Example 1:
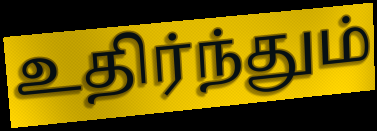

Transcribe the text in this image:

உதிர்ந்தும்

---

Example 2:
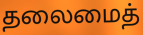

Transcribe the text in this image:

தலைமைத்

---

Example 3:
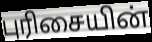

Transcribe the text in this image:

புரிசையின்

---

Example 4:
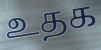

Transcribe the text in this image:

உதக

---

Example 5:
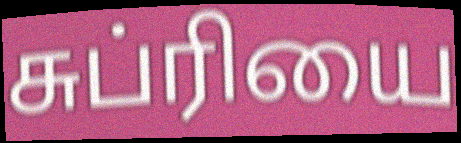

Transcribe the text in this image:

சுப்ரியை